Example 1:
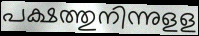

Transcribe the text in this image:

പക്ഷത്തുനിന്നുളള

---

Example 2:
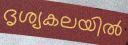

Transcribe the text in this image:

ദൃശ്യകലയിൽ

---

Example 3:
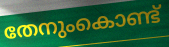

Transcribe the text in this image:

തേനുംകൊണ്ട്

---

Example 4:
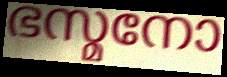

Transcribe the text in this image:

ഭസ്മനോ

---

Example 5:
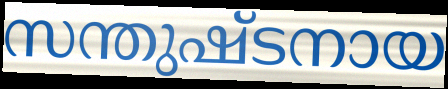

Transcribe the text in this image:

സന്തുഷ്ടനായ